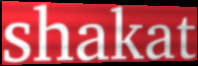
shakat